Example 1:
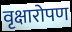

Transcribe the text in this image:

वृक्षारोपण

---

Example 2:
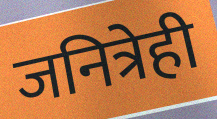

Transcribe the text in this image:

जनित्रेही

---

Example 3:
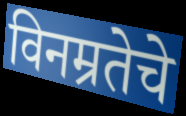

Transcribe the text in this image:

विनम्रतेचे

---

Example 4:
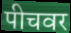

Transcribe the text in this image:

पीचवर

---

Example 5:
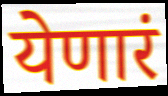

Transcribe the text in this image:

येणारं